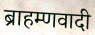
ब्राहम्णवादी